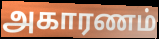
அகாரணம்